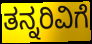
ತನ್ನರಿವಿಗೆ